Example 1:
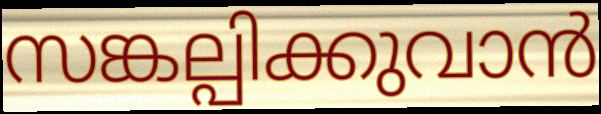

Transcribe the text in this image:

സങ്കല്പിക്കുവാൻ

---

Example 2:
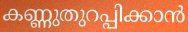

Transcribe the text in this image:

കണ്ണുതുറപ്പിക്കാൻ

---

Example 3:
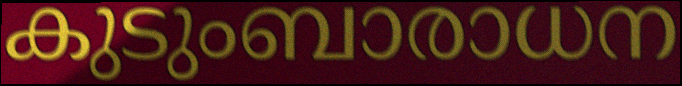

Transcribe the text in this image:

കുടുംബാരാധന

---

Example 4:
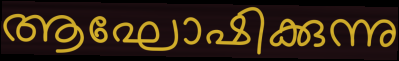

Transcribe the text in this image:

ആഘോഷിക്കുന്നു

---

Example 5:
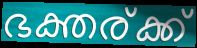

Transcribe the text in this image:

ഭക്തര്ക്ക്